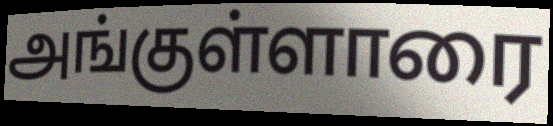
அங்குள்ளாரை